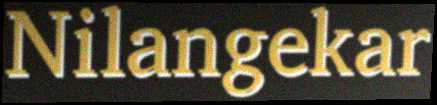
Nilangekar